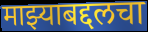
माझ्याबद्दलचा